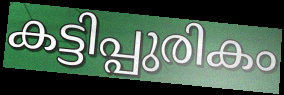
കട്ടിപ്പുരികം